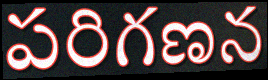
పరిగణన